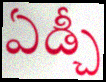
ఏడ్చీ